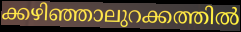
ക്കഴിഞ്ഞാലുറക്കത്തിൽ